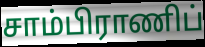
சாம்பிராணிப்